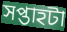
সপ্তাহটা